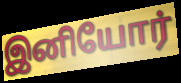
இனியோர்